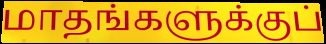
மாதங்களுக்குப்